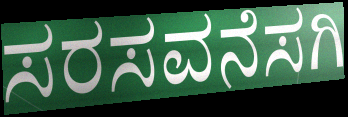
ಸರಸವನೆಸಗಿ